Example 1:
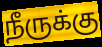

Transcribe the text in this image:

நீருக்கு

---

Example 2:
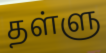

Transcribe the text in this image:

தள்ளு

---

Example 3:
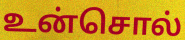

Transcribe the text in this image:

உன்சொல்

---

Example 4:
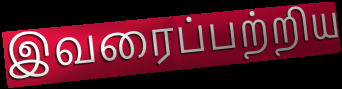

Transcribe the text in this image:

இவரைப்பற்றிய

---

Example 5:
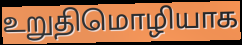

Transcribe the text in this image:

உறுதிமொழியாக